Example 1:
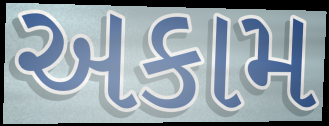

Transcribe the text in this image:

અકામ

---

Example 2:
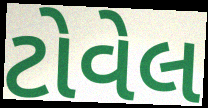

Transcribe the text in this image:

ટોવેલ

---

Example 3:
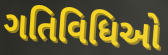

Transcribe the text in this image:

ગતિવિધિઓ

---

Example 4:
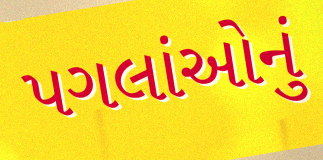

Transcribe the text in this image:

પગલાંઓનું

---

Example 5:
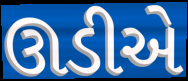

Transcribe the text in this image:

ઊડીએ